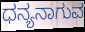
ಧನ್ಯನಾಗುವ